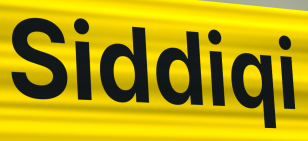
Siddiqi